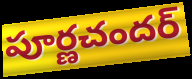
పూర్ణచందర్